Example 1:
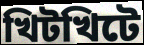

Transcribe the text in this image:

খিটখিটে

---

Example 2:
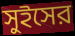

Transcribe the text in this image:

সুইসের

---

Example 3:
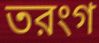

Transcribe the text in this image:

তরংগ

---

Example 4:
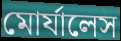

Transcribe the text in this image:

মোর্যালেস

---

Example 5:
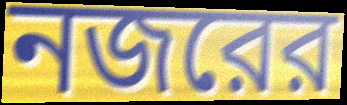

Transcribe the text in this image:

নজরের